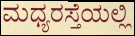
ಮಧ್ಯರಸ್ತೆಯಲ್ಲಿ